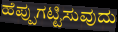
ಹೆಪ್ಪುಗಟ್ಟಿಸುವುದು